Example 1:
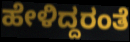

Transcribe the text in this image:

ಹೇಳಿದ್ದರಂತೆ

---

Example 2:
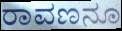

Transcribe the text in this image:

ರಾವಣನೂ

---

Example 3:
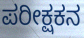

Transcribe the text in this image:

ಪರೀಕ್ಷಕನ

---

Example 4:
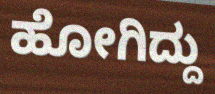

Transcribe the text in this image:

ಹೋಗಿದ್ದು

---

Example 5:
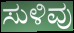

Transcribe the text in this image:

ಸುಳಿವು